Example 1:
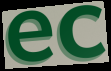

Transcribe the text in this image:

ec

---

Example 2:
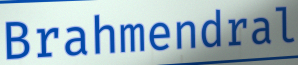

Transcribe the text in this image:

Brahmendral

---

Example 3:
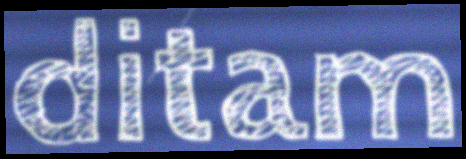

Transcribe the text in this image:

ditam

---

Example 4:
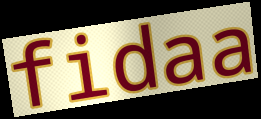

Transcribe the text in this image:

fidaa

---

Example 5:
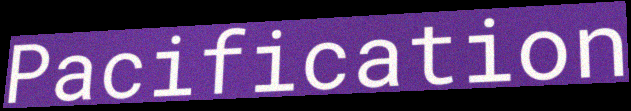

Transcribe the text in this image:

Pacification